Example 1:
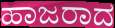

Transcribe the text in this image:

ಹಾಜರಾದ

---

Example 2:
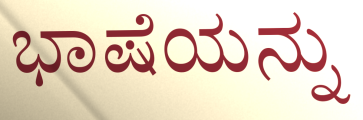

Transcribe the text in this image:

ಭಾಷೆಯನ್ನು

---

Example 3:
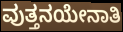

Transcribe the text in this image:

ವುತ್ತನಯೇನಾತಿ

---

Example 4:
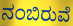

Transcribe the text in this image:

ನಂಬಿರುವೆ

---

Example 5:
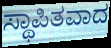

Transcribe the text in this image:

ಸ್ಥಾಪಿತವಾದ